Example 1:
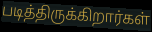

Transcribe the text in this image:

படித்திருக்கிறார்கள்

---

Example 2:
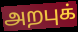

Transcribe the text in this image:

அறபுக்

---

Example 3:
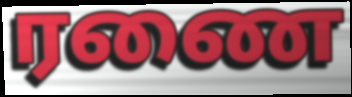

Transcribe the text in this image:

ரணை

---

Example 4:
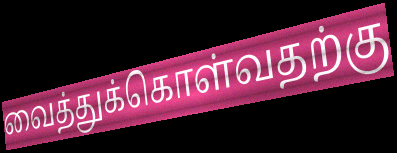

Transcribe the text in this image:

வைத்துக்கொள்வதற்கு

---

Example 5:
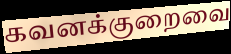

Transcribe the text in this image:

கவனக்குறைவை